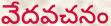
వేదవచనం